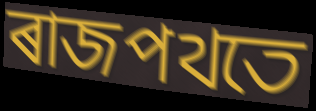
ৰাজপথতে